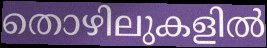
തൊഴിലുകളിൽ